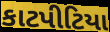
કાટપીટિયા